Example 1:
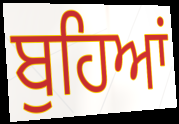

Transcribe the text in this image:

ਬੁਹਿਆਂ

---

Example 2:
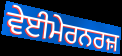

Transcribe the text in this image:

ਵੇਈਮੇਰਨਰਜ਼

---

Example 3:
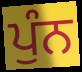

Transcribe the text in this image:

ਪੁੰਨ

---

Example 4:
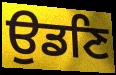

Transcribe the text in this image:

ਉਡਣਿ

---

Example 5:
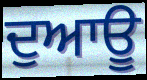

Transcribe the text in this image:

ਦੁਆਊ